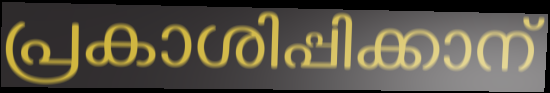
പ്രകാശിപ്പിക്കാന്